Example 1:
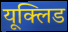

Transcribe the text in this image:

यूक्लिड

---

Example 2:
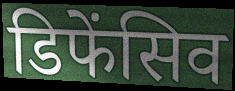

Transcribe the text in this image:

डिफेंसिव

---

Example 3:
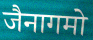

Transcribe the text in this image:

जैनागमो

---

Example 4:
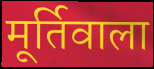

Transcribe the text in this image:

मूर्तिवाला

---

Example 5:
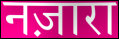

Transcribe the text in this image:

नज़ारा